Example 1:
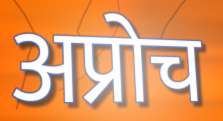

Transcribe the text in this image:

अप्रोच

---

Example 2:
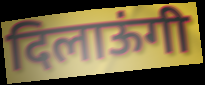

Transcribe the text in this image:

दिलाऊंगी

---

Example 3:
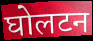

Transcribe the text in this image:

घोलटन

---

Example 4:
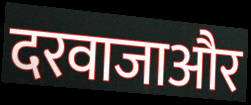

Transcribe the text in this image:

दरवाजाऔर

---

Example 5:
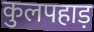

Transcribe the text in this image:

कुलपहाड़